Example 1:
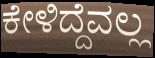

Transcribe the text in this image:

ಕೇಳಿದ್ದೆವಲ್ಲ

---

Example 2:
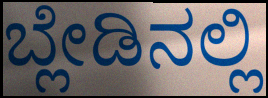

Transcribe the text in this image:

ಬ್ಲೇಡಿನಲ್ಲಿ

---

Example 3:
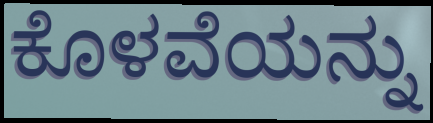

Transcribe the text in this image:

ಕೊಳವೆಯನ್ನು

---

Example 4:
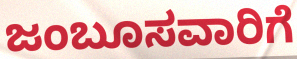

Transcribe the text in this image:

ಜಂಬೂಸವಾರಿಗೆ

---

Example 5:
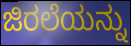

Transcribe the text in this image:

ಜಿರಲೆಯನ್ನು